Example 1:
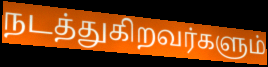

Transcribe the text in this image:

நடத்துகிறவர்களும்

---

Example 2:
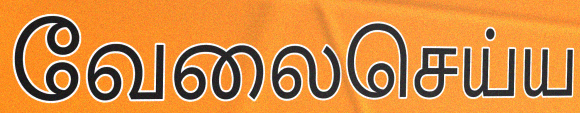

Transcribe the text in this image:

வேலைசெய்ய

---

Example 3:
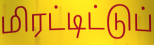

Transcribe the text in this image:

மிரட்டிட்டுப்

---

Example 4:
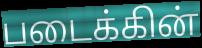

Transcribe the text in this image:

படைக்கின்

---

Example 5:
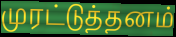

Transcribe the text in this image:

முரட்டுத்தனம்